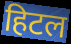
हिटल